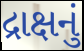
દ્રાક્ષનું